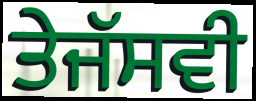
ਤੇਜੱਸਵੀ